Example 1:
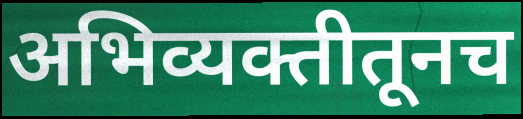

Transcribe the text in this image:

अभिव्यक्तीतूनच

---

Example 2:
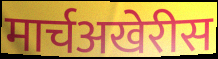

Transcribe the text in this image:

मार्चअखेरीस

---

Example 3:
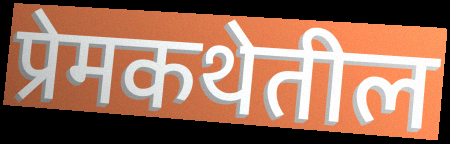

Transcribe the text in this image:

प्रेमकथेतील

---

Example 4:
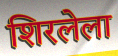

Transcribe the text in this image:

शिरलेला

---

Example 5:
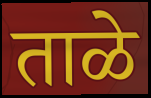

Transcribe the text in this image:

ताळे